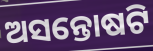
ଅସନ୍ତୋଷଟି